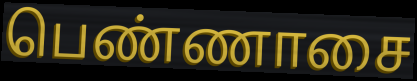
பெண்ணாசை